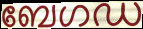
ബേഗഡ